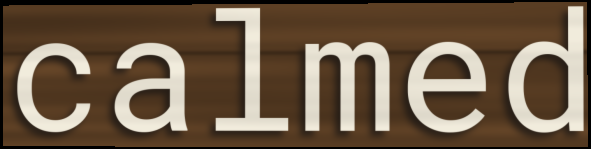
calmed